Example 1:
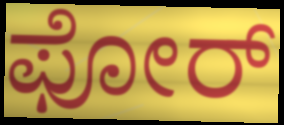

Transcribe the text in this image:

ಫೋರ್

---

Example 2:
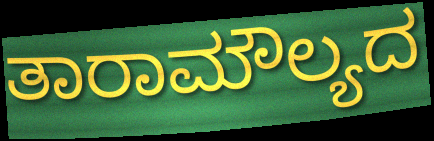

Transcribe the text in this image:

ತಾರಾಮೌಲ್ಯದ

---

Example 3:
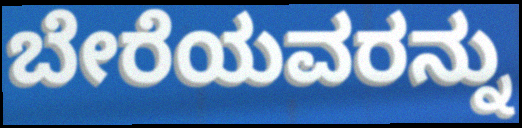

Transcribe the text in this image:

ಬೇರೆಯವರನ್ನು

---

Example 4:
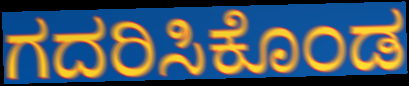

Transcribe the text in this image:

ಗದರಿಸಿಕೊಂಡ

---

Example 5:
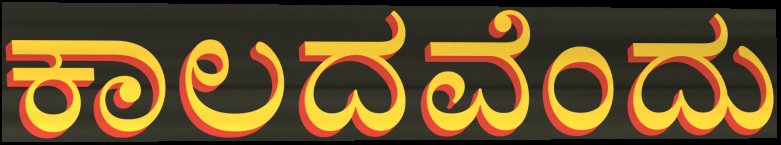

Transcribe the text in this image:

ಕಾಲದವೆಂದು